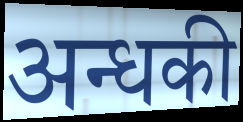
अन्धकी